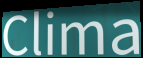
Clima